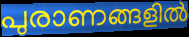
പുരാണങ്ങളിൽ